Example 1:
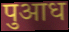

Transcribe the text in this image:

पुआध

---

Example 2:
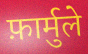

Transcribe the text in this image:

फ़ार्मुले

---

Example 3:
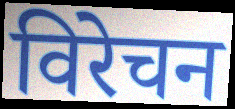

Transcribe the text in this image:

विरेचन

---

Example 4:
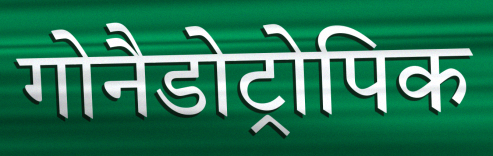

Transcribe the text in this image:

गोनैडोट्रोपिक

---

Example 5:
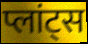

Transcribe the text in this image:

प्लांट्स